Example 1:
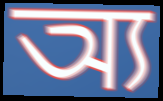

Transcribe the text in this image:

অ্য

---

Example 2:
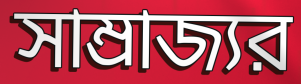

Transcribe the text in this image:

সাম্রাজ্যর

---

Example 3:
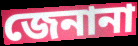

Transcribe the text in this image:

জেনানা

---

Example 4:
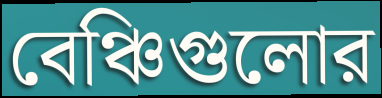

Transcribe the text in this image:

বেঞ্চিগুলোর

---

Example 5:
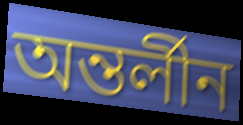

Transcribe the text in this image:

অন্তর্লীন